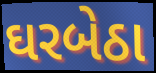
ઘરબેઠા